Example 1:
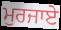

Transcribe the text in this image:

ਮੁਰਜਾਏ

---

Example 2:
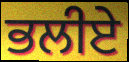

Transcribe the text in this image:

ਭਲੀਏ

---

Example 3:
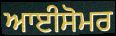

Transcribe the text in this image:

ਆਈਸੋਮਰ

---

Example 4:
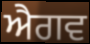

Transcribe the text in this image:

ਐਗਵ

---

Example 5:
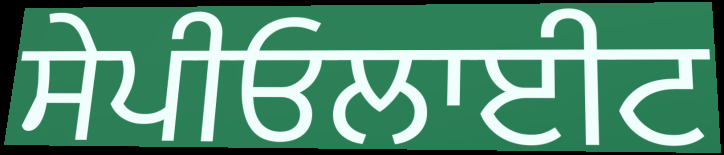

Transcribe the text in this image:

ਸੇਪੀਓਲਾਈਟ